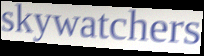
skywatchers